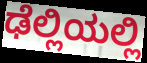
ಢೆಲ್ಲಿಯಲ್ಲಿ